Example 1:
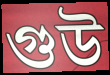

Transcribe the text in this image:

গুউ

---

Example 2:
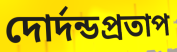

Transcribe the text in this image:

দোর্দন্ডপ্রতাপ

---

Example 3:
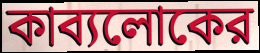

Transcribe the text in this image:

কাব্যলোকের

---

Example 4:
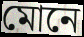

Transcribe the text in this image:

মোনে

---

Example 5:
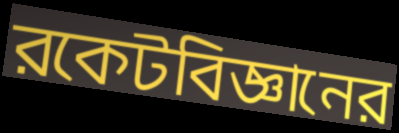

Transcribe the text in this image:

রকেটবিজ্ঞানের